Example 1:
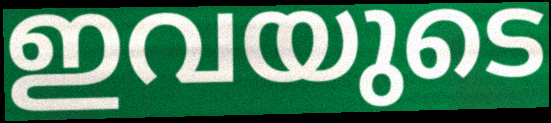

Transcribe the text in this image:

ഇവയുടെ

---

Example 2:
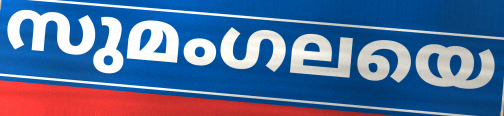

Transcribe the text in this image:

സുമംഗലയെ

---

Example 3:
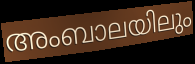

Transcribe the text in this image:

അംബാലയിലും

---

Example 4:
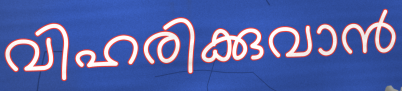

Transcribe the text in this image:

വിഹരിക്കുവാൻ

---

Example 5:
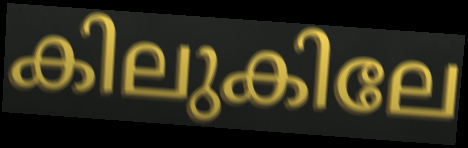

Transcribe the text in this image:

കിലുകിലേ